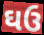
ઘઉ